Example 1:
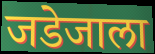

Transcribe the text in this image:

जडेजाला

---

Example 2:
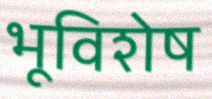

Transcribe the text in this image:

भूविशेष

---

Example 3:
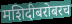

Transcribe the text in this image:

मशिदीबरोबरच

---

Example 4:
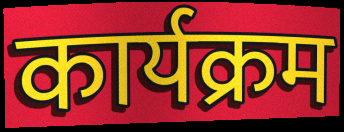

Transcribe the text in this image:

कार्यक्रम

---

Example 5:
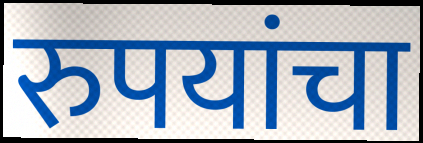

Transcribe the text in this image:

रुपयांचा